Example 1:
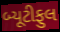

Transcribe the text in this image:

બ્યૂટીફુલ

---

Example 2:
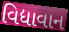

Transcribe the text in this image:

વિદ્યાવાન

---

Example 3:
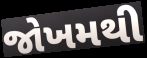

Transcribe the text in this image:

જોખમથી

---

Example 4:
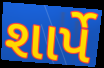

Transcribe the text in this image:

શાર્પે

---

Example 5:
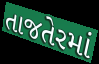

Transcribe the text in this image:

તાજતેરમાં